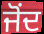
ਜੋਂਦ